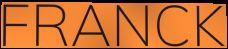
FRANCK